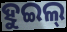
ହୁଇଲ୍